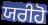
ਯਰੀਹੋ